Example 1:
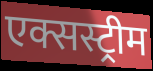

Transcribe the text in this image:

एक्सस्ट्रीम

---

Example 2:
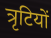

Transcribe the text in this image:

त्रृटियों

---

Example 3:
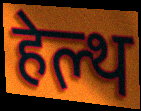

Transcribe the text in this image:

हेल्‍थ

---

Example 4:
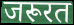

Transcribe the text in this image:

जरूरत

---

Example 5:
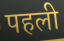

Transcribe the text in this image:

पहली